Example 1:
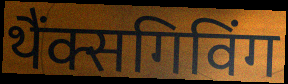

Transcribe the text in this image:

थैंक्सगिविंग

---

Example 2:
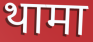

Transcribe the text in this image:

थामा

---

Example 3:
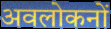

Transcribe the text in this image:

अवलोकनों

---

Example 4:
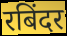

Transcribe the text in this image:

रबिंदर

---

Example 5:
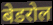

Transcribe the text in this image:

बेडरोल